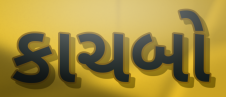
કાચબો